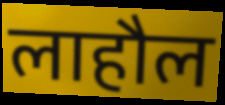
लाहौल